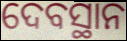
ଦେବସ୍ଥାନ